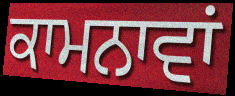
ਕਾਮਨਾਵਾਂ